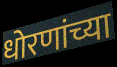
धोरणांच्या